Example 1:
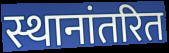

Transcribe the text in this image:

स्थानांतरित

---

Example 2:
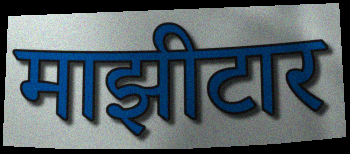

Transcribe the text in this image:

माझीटार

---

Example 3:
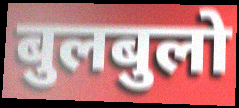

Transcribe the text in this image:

बुलबुलो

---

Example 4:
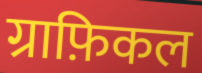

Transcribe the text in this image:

ग्राफ़िकल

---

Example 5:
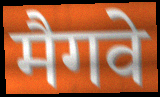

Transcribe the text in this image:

मैगवे